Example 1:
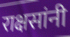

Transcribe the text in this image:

राक्षसांनी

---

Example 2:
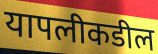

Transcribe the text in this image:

यापलीकडील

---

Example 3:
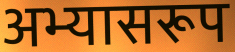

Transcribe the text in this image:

अभ्यासरूप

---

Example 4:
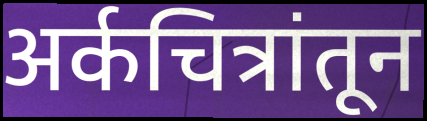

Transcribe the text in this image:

अर्कचित्रांतून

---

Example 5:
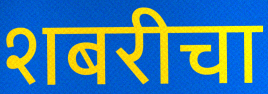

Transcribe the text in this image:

शबरीचा